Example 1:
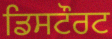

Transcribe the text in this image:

ਡਿਸਟੌਰਟ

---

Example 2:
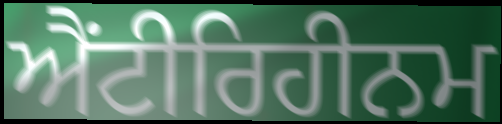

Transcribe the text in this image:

ਐਂਟੀਰਿਹੀਨਮ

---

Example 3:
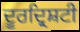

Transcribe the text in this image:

ਦੂਰਦ੍ਰਿਸ਼ਟੀ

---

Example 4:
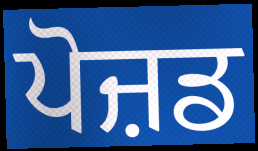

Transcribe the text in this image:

ਪੋਜ਼ਡ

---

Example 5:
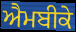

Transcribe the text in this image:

ਐਮਬੀਕੇ